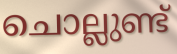
ചൊല്ലുണ്ട്